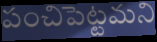
పంచిపెట్టమని